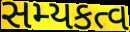
સમ્યકત્વ